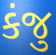
કંજુ